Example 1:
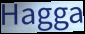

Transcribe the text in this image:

Hagga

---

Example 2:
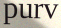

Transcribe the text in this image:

purv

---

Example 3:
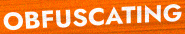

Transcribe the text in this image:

OBFUSCATING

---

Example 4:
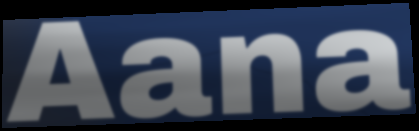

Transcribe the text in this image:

Aana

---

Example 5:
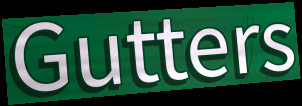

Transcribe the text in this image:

Gutters